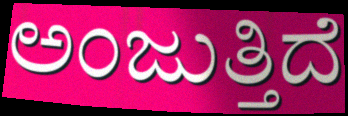
ಅಂಜುತ್ತಿದೆ